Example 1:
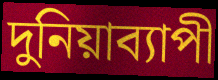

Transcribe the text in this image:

দুনিয়াব্যাপী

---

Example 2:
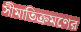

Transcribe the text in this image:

সীমাতিক্রমণের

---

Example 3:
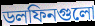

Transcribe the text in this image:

ডলফিনগুলো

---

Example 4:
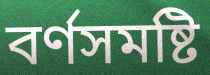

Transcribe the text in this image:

বর্ণসমষ্টি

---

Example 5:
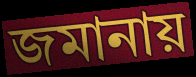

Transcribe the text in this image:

জমানায়